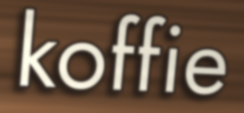
koffie